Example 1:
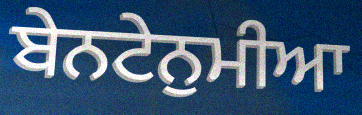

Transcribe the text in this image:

ਬੇਨਟੇਨੁਮੀਆ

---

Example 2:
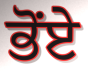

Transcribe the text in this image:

ਭੋਂਏ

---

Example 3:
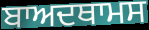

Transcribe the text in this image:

ਬਾਅਦਥਾਮਸ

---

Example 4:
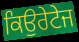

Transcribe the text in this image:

ਕਿਉਰੇਟੇਜ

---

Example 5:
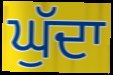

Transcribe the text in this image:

ਘੁੱਦਾ